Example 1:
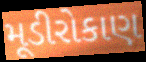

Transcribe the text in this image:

મૂડીરોકાણ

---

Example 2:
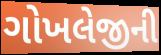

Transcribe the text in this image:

ગોખલેજીની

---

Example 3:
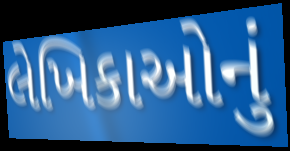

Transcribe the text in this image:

લેખિકાઓનું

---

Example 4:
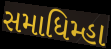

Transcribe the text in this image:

સમાધિમ્હા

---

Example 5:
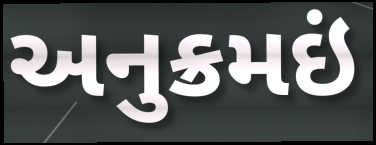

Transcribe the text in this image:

અનુક્રમઇં